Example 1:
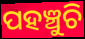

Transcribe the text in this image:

ପହଞ୍ଚୁଚି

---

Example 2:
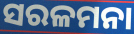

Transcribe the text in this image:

ସରଳମନା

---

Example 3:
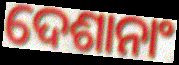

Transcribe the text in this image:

ଦେଶାନାଂ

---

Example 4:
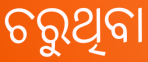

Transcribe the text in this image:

ଚରୁଥିବା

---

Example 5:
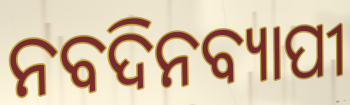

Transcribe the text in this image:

ନବଦିନବ୍ୟାପୀ